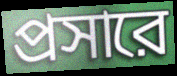
প্রসারে